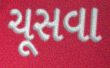
ચૂસવા